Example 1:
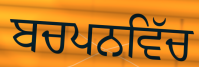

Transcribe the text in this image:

ਬਚਪਨਵਿੱਚ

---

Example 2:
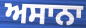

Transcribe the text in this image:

ਅਸਾਨਾ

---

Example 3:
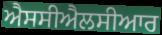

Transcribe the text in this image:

ਐਸਸੀਐਲਸੀਆਰ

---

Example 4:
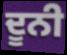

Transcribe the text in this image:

ਦੂਨੀ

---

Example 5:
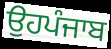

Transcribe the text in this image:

ਉਹਪੰਜਾਬ